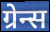
ग्रेन्स